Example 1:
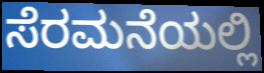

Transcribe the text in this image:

ಸೆರಮನೆಯಲ್ಲಿ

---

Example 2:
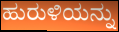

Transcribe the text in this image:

ಹುರುಳಿಯನ್ನು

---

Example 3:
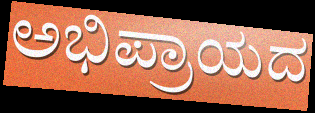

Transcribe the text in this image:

ಅಭಿಪ್ರಾಯದ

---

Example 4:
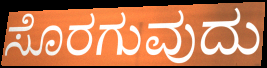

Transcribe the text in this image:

ಸೊರಗುವುದು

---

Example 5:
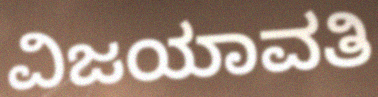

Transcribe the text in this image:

ವಿಜಯಾವತಿ